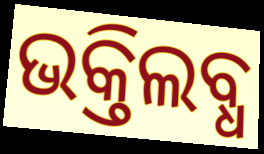
ଭକ୍ତିଲବ୍ଧ